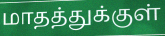
மாதத்துக்குள்